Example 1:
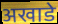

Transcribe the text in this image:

अखाडे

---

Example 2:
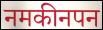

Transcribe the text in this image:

नमकीनपन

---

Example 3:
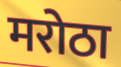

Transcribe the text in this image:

मरोठा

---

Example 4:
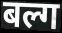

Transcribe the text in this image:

बल्ग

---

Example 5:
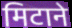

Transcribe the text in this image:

मिटाने